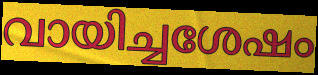
വായിച്ചശേഷം